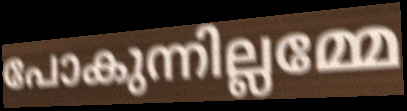
പോകുന്നില്ലമ്മേ